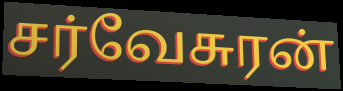
சர்வேசுரன்